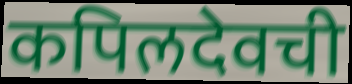
कपिलदेवची